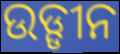
ଉଡ୍ଡୀନ